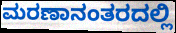
ಮರಣಾನಂತರದಲ್ಲಿ